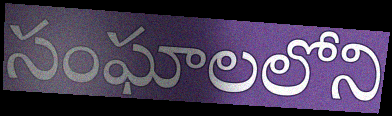
సంఘాలలోని